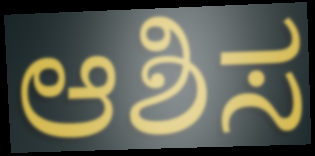
ಆಶಿಸ